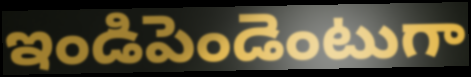
ఇండిపెండెంటుగా